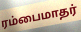
ரம்பைமாதர்